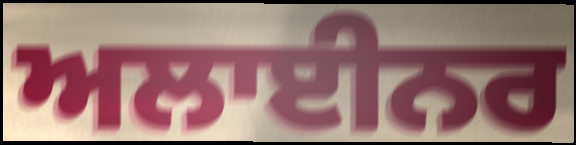
ਅਲਾਈਨਰ